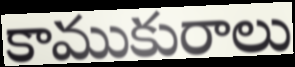
కాముకురాలు